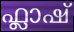
ഫ്ലാഷ്